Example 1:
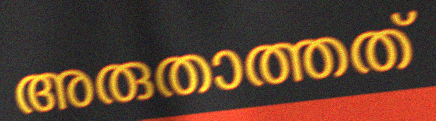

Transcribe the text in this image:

അരുതാത്തത്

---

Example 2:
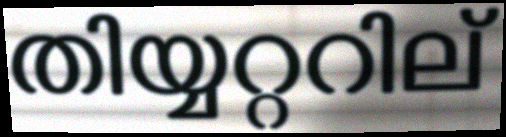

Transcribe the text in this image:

തിയ്യറ്ററില്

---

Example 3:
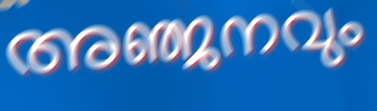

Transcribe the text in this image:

അഞ്ജനവും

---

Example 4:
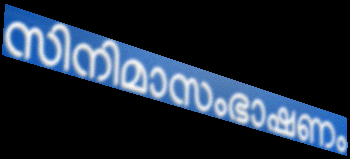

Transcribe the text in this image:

സിനിമാസംഭാഷണം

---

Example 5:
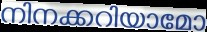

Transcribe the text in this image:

നിനക്കറിയാമോ